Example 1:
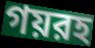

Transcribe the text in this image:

গয়রহ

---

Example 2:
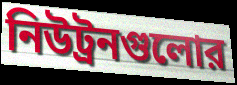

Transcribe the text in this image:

নিউট্রনগুলোর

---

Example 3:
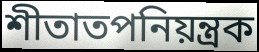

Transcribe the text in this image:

শীতাতপনিয়ন্ত্রক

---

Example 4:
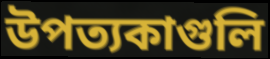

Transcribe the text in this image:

উপত্যকাগুলি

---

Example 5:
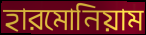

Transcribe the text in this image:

হারমোনিয়াম